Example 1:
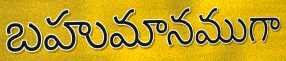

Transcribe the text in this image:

బహుమానముగా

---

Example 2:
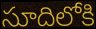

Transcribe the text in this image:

సూదిలోకి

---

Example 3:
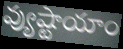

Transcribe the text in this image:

వ్యుష్టాయాం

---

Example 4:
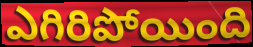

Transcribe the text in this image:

ఎగిరిపోయింది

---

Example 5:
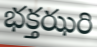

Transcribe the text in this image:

భక్తఝరి